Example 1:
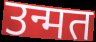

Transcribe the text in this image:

उन्मत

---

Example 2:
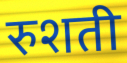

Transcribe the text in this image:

रुशती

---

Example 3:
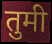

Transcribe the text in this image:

तुमी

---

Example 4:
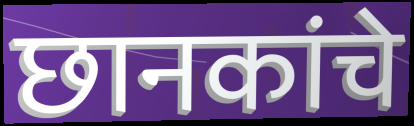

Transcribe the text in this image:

छानकांचे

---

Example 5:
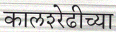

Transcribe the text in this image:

कालश्रेढीच्या